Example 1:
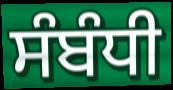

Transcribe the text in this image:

ਸੰਬੰਧੀ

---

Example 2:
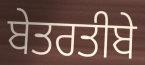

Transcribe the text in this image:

ਬੇਤਰਤੀਬੇ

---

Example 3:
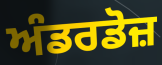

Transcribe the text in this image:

ਅੰਡਰਡੋਜ਼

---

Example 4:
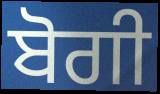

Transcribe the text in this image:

ਬੋਗੀ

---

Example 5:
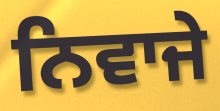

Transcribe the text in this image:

ਨਿਵਾਜੇ